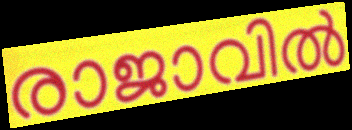
രാജാവിൽ